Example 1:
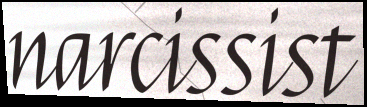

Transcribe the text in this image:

narcissist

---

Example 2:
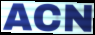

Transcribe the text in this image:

ACN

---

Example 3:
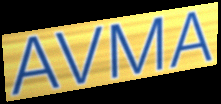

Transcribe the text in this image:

AVMA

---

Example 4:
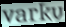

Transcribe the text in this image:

varku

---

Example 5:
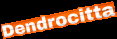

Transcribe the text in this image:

Dendrocitta